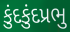
કુંદકુંદપ્રભુ